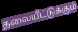
தலையீட்டுக்கும்